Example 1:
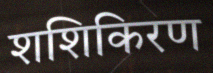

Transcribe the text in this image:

शशिकिरण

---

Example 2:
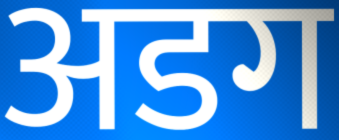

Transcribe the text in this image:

अडग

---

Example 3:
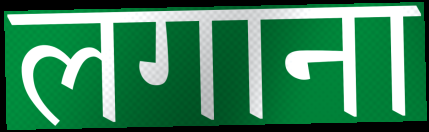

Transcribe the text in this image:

लगाना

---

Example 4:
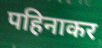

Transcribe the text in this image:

पहिनाकर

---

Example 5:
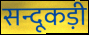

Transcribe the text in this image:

सन्दूकड़ी